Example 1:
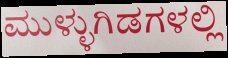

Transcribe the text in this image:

ಮುಳ್ಳುಗಿಡಗಳಲ್ಲಿ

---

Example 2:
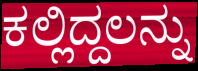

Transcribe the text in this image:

ಕಲ್ಲಿದ್ದಲನ್ನು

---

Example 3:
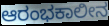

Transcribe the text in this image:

ಆರಂಭಕಾಲೀನ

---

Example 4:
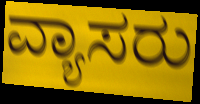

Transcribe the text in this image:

ವ್ಯಾಸರು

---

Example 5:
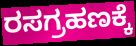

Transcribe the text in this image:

ರಸಗ್ರಹಣಕ್ಕೆ